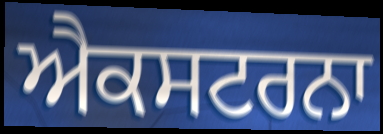
ਐਕਸਟਰਨਾ